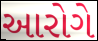
આરોગે